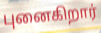
புனைகிறார்